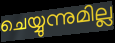
ചെയ്യുന്നുമില്ല